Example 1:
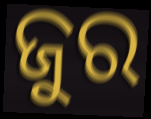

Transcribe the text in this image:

ଜୁର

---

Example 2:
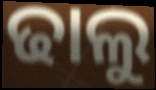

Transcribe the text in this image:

ଢାଲୁ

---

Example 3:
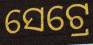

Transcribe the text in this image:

ସେଟ୍ରେ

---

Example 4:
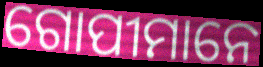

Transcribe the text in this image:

ଗୋପୀମାନେ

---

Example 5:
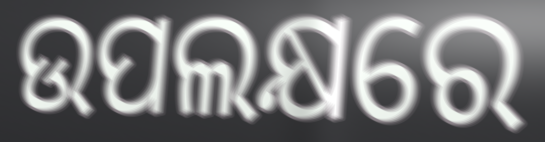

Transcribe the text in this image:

ଉପଲକ୍ଷରେ